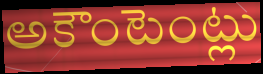
అకౌంటెంట్లు